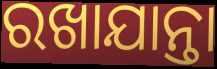
ରଖାଯାନ୍ତା